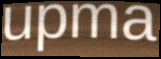
upma